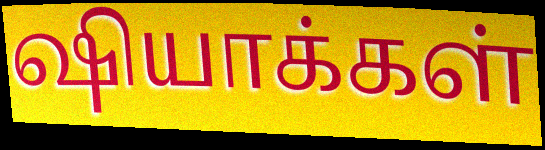
ஷியாக்கள்